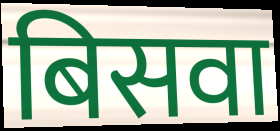
बिसवा